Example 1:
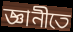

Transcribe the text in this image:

জ্ঞানীতে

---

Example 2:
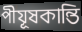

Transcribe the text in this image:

পীযূষকান্তি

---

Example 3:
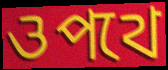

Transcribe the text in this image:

ওপথে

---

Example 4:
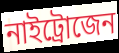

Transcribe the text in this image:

নাইট্রোজেন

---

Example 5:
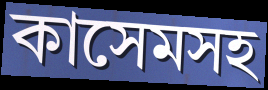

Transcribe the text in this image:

কাসেমসহ